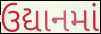
ઉદ્યાનમાં